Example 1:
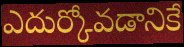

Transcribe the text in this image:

ఎదుర్కోవడానికే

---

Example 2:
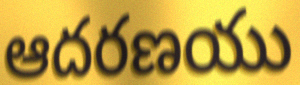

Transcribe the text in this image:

ఆదరణయు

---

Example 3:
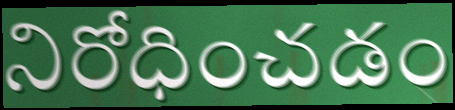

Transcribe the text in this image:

నిరోధించడం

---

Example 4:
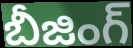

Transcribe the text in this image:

బీజింగ్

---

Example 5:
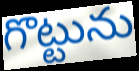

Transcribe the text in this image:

గొట్టును